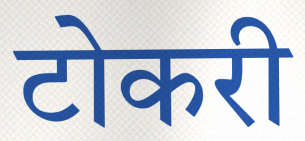
टोकरी